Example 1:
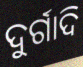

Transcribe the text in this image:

ଦୁର୍ଗାଦି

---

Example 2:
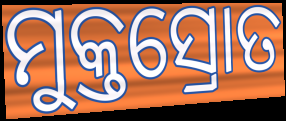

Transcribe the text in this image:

ମୁକ୍ତସ୍ରୋତ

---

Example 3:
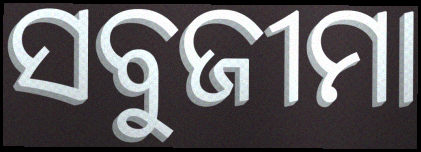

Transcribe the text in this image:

ସବୁଜୀମା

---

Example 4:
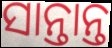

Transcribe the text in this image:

ସାନ୍ତାନ୍ତ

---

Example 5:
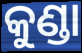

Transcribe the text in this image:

କୁଣ୍ଡା